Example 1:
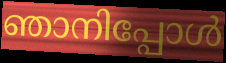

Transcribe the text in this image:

ഞാനിപ്പോൾ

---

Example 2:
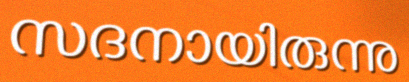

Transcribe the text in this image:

സദനായിരുന്നു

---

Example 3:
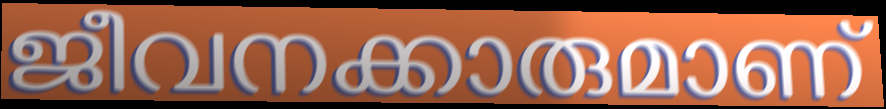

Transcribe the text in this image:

ജീവനക്കാരുമാണ്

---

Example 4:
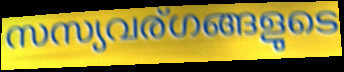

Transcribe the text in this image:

സസ്യവര്ഗങ്ങളുടെ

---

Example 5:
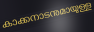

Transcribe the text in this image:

കാക്കനാടനുമായുള്ള